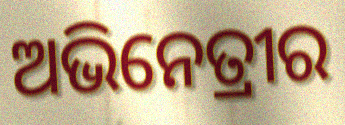
ଅଭିନେତ୍ରୀର